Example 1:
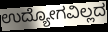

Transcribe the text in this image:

ಉದ್ಯೋಗವಿಲ್ಲದ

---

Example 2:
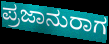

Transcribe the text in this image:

ಪ್ರಜಾನುರಾಗ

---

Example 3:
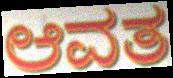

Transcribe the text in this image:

ಆವತ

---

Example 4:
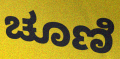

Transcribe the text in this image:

ಚೂಣಿ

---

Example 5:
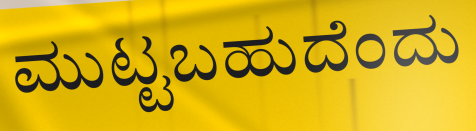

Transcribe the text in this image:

ಮುಟ್ಟಬಹುದೆಂದು